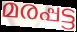
മരപ്പട്ട